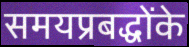
समयप्रबद्धोंके